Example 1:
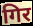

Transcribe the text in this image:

गिर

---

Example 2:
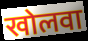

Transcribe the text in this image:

खोलवा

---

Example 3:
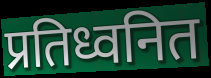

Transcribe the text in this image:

प्रतिध्वनित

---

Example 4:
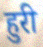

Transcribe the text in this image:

हुरी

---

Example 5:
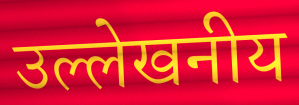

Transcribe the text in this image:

उल्लेखनीय